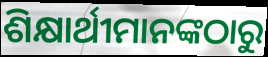
ଶିକ୍ଷାର୍ଥୀମାନଙ୍କଠାରୁ